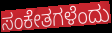
ಸಂಕೇತಗಳೆಂದು